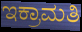
ಇಕ್ರಾಮತಿ